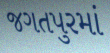
જગતપુરમાં